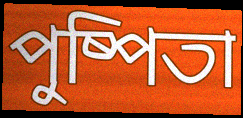
পুষ্পিতা